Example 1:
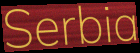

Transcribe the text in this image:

Serbia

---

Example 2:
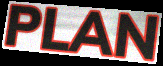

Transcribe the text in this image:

PLAN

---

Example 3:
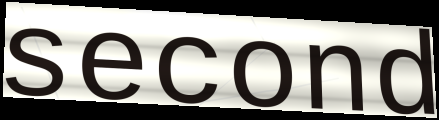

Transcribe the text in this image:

second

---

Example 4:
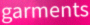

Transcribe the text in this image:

garments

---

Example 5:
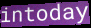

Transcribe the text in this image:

intoday